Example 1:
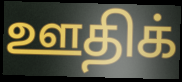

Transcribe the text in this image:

ஊதிக்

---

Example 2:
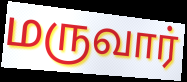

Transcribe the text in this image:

மருவார்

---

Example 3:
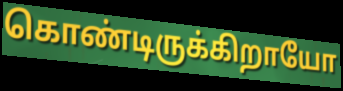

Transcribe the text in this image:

கொண்டிருக்கிறாயோ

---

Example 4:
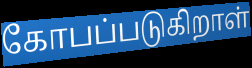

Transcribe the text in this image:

கோபப்படுகிறாள்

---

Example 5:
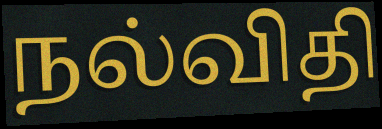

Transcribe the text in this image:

நல்விதி